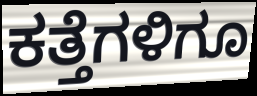
ಕತ್ತೆಗಳಿಗೂ